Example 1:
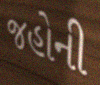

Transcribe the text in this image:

જહોની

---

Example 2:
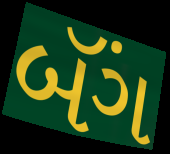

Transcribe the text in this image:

બૅંગ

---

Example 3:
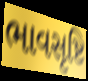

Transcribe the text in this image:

ભાવસૃષ્ટિ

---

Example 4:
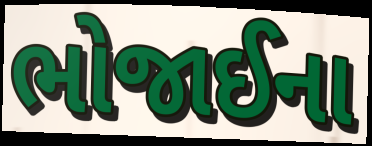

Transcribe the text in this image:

ભોજાઈના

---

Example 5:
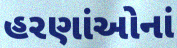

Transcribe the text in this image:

હરણાંઓનાં